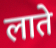
लाते